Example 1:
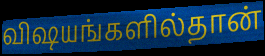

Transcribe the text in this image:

விஷயங்களில்தான்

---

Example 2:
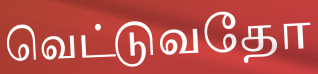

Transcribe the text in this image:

வெட்டுவதோ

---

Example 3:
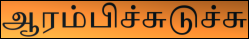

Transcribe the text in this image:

ஆரம்பிச்சுடுச்சு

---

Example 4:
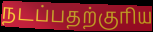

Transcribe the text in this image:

நடப்பதற்குரிய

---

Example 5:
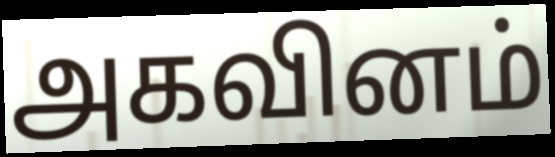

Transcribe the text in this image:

அகவினம்